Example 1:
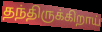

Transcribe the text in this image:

தந்திருக்கிறாய்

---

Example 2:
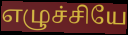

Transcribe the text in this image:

எழுச்சியே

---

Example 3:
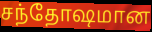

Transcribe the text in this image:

சந்தோஷமான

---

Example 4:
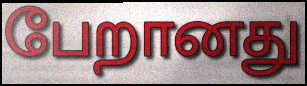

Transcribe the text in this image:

பேறானது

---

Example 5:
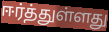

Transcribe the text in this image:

ஈர்த்துள்ளது